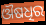
ଔଷଧିର